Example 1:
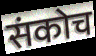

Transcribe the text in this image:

संकोच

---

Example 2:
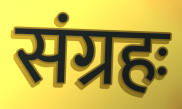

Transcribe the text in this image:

संग्रहः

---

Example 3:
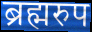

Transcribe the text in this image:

ब्रह्मरुप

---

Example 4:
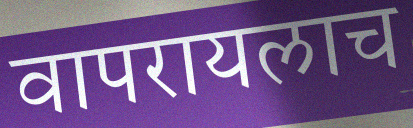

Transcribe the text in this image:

वापरायलाच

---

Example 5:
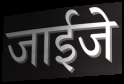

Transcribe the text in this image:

जाईजे